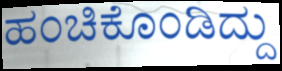
ಹಂಚಿಕೊಂಡಿದ್ದು